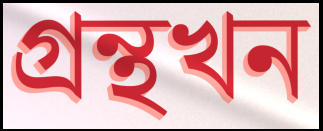
গ্ৰন্থখন